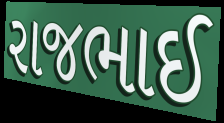
રાજભાઈ